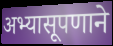
अभ्यासूपणाने